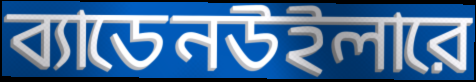
ব্যাডেনউইলারে